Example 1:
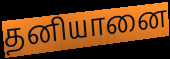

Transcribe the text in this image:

தனியானை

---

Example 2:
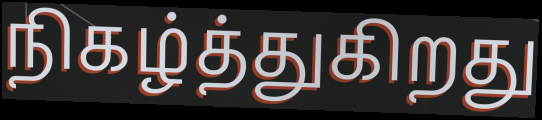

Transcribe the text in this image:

நிகழ்த்துகிறது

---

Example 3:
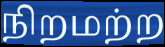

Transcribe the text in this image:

நிறமற்ற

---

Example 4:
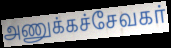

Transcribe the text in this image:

அணுக்கச்சேவகர்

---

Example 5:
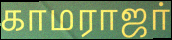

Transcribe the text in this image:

காமராஜர்